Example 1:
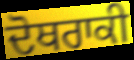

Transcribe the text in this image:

ਦੋਥਰਾਕੀ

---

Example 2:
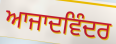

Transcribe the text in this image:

ਆਜਾਦਵਿੰਦਰ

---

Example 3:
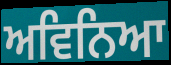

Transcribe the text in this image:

ਅਵਿਨਿਆ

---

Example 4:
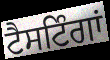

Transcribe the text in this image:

ਟੈਸਟਿੰਗਾਂ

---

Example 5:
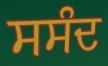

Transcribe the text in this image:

ਸਸੰਦ